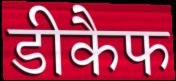
डीकैफ